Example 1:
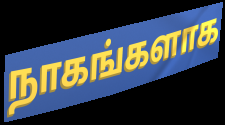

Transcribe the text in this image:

நாகங்களாக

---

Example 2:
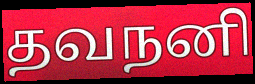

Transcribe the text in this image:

தவநனி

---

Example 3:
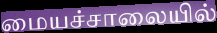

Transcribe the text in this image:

மையச்சாலையில்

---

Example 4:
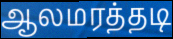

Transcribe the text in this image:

ஆலமரத்தடி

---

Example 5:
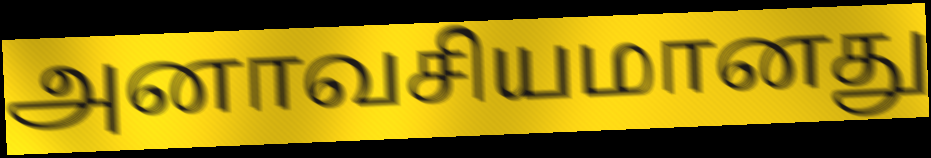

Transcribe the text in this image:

அனாவசியமானது